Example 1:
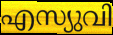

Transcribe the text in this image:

എസ്യുവി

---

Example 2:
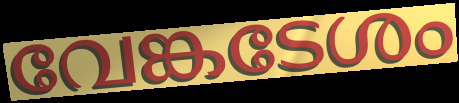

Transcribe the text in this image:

വേങ്കടേശം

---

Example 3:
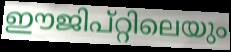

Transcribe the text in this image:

ഈജിപ്റ്റിലെയും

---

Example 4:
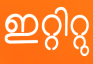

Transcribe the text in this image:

ഇറ്റിറ്റു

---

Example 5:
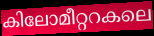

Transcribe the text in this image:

കിലോമീറ്ററകലെ